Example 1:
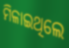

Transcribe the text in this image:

ମିଳାଇଥିଲେ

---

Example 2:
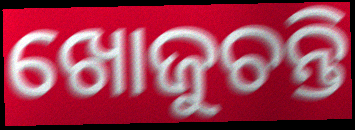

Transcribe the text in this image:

ଖୋଜୁଚନ୍ତି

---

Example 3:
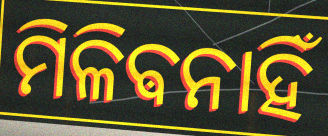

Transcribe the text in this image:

ମିଳିଵନାହିଁ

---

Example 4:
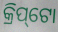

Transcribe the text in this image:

କ୍ରିପ୍‌ଟୋ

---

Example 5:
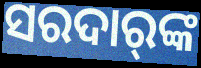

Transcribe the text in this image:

ସରଦାର୍‍ଙ୍କ